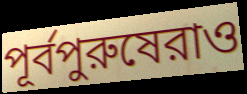
পূর্বপুরুষেরাও